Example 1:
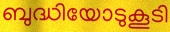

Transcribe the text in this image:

ബുദ്ധിയോടുകൂടി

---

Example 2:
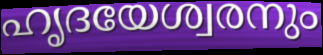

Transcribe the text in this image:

ഹൃദയേശ്വരനും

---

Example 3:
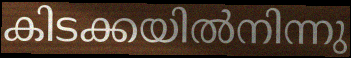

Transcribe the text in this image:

കിടക്കയിൽനിന്നു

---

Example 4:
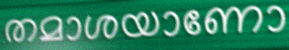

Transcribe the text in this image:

തമാശയാണോ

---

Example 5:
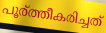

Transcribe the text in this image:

പൂര്ത്തീകരിച്ചത്